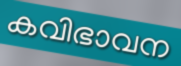
കവിഭാവന